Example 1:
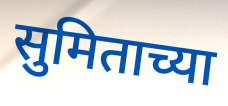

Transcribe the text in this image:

सुमिताच्या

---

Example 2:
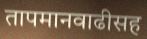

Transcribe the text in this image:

तापमानवाढीसह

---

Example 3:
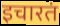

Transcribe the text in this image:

इचारतं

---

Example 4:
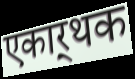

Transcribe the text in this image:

एकार्थक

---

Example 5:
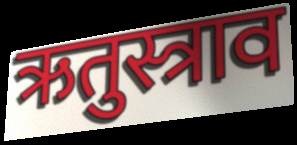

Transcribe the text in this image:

ऋतुस्त्राव